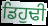
ਡਿਹੁਢੀ